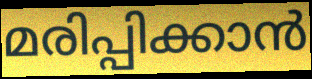
മരിപ്പിക്കാൻ